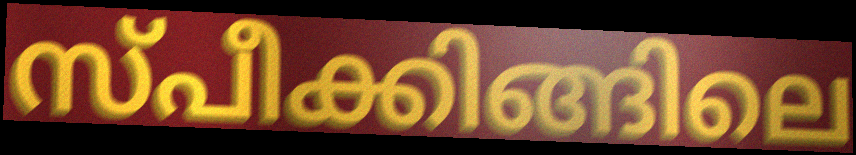
സ്പീക്കിങ്ങിലെ